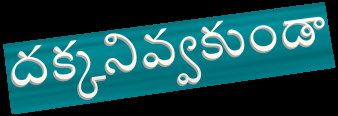
దక్కనివ్వకుండా